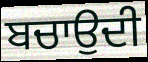
ਬਚਾਉਦੀ